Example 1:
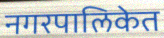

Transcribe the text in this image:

नगरपालिकेत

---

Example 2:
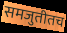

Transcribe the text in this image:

समजुतीतच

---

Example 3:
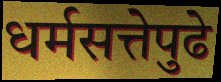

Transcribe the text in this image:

धर्मसत्तेपुढे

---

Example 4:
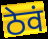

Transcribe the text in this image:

ठेवं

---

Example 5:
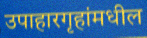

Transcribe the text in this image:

उपाहारगृहांमधील